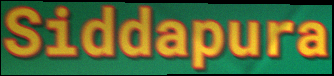
Siddapura